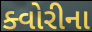
ક્વોરીના